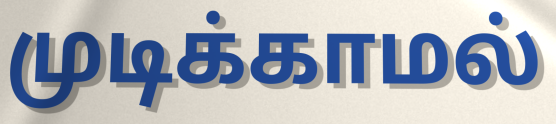
முடிக்காமல்